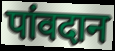
पांवदान